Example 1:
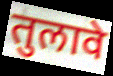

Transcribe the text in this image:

तुलावे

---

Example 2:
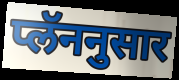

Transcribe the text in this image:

प्लॅननुसार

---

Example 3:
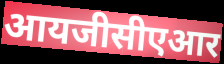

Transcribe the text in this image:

आयजीसीएआर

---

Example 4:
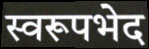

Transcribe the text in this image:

स्वरूपभेद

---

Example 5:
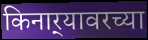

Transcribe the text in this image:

किनार्यावरच्या